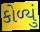
કોળ્યું